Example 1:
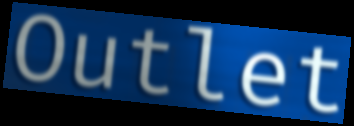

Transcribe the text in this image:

Outlet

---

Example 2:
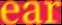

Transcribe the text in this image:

ear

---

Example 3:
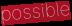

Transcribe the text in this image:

possible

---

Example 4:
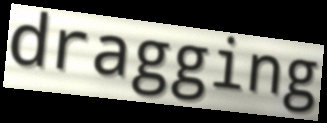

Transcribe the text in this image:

dragging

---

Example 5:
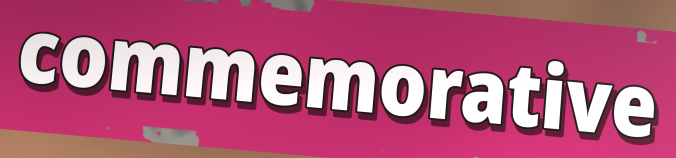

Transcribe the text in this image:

commemorative